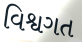
વિશ્વગત